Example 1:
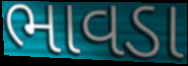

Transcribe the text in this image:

ભાવડા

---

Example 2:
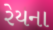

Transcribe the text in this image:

રેયના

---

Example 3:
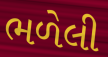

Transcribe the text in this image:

ભળેલી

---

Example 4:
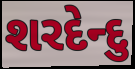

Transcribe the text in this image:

શરદેન્દુ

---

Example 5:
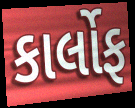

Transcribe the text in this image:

કાર્લોફ